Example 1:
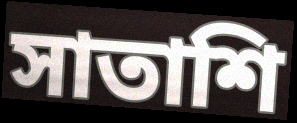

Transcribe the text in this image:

সাতাশি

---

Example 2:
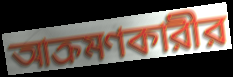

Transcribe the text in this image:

আক্রমণকারীর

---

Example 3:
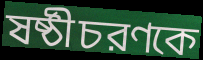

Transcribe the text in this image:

ষষ্ঠীচরণকে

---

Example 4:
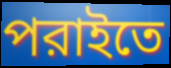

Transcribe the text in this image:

পরাইতে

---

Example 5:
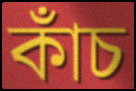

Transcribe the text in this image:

কাঁচ